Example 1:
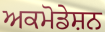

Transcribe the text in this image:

ਅਕਮੋਡੇਸ਼ਨ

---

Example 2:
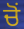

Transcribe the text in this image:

ਚੋਂ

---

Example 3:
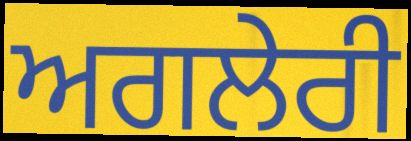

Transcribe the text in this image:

ਅਗਲੇਰੀ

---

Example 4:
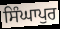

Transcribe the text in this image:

ਸਿੰਘਾਪੁਰ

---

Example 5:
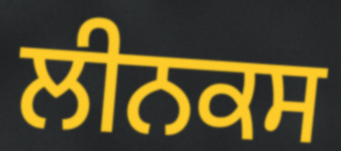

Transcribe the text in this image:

ਲੀਨਕਸ